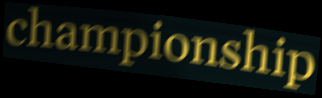
championship